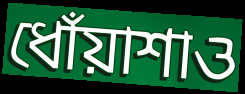
ধোঁয়াশাও